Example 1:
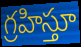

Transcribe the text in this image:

గ్రహిస్తూ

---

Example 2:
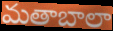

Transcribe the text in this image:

మతాబాలా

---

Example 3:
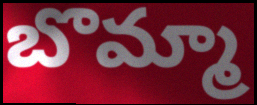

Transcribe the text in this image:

బొమ్మా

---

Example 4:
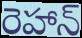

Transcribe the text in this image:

రెహాన్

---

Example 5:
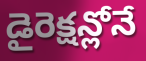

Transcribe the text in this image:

డైరెక్షన్లోనే